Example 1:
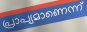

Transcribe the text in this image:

പ്രാപ്യമാണെന്ന്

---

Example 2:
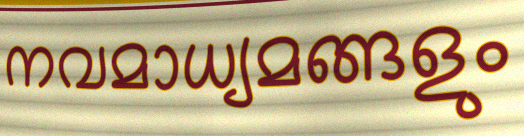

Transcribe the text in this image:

നവമാധ്യമങ്ങളും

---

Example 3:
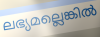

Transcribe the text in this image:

ലഭ്യമല്ലെങ്കിൽ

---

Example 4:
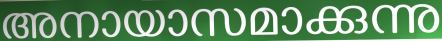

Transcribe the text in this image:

അനായാസമാക്കുന്നു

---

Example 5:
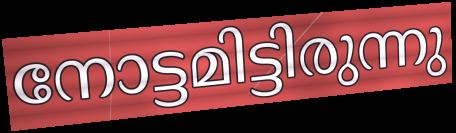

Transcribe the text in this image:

നോട്ടമിട്ടിരുന്നു